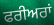
ਫਰੀਅਰਾਂ